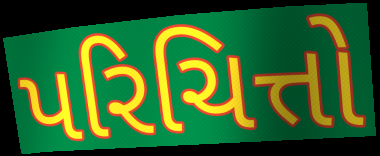
પરિચિત્તો